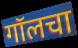
गॉलचा